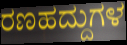
ರಣಹದ್ದುಗಳ